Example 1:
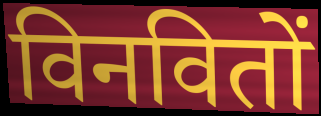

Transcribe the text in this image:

विनवितों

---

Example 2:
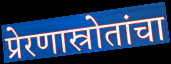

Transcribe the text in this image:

प्रेरणास्रोतांचा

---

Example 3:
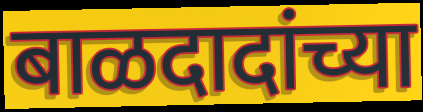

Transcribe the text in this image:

बाळदादांच्या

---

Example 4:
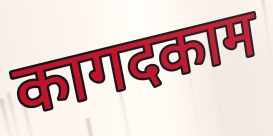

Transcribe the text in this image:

कागदकाम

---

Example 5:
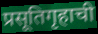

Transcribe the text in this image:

प्रसूतिगृहाची